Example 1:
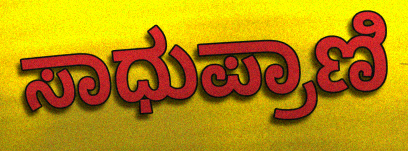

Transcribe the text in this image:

ಸಾಧುಪ್ರಾಣಿ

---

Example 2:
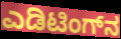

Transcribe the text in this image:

ಎಡಿಟಿಂಗ್‌ನ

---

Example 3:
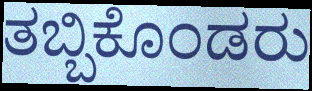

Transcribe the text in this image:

ತಬ್ಬಿಕೊಂಡರು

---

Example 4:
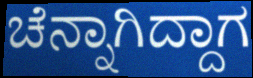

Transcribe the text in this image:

ಚೆನ್ನಾಗಿದ್ದಾಗ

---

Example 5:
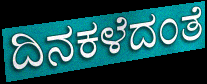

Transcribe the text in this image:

ದಿನಕಳೆದಂತೆ